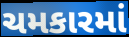
ચમકારમાં